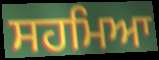
ਸਹਮਿਆ